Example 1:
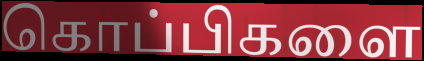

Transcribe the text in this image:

கொப்பிகளை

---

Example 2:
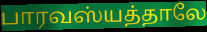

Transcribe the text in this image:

பாரவஸ்யத்தாலே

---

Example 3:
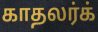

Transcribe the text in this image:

காதலர்க்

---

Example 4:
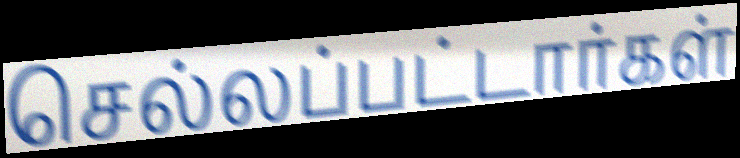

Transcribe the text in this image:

செல்லப்பட்டார்கள்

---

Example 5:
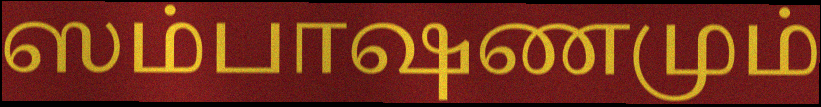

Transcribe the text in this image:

ஸம்பாஷணமும்